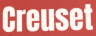
Creuset